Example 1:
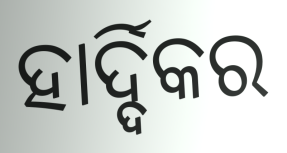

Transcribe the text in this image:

ହାର୍ଦ୍ଦିକର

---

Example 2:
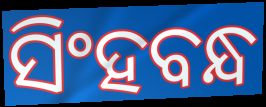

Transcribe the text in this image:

ସିଂହବନ୍ଧ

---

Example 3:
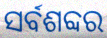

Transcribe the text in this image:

ସର୍ବଶବ୍ଦର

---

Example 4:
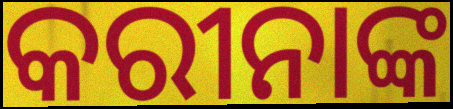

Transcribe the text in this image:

କରୀନାଙ୍କ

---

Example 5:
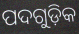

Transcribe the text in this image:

ପଦଗୁଡ଼ିକ